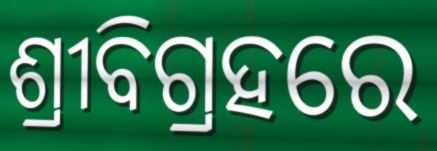
ଶ୍ରୀବିଗ୍ରହରେ